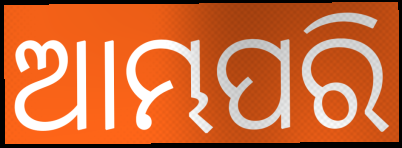
ଆମ୍ଭପରି